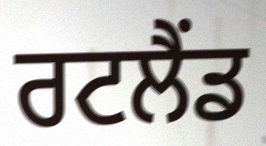
ਰਟਲੈਂਡ